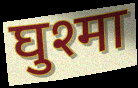
घुश्मा